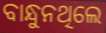
ବାନ୍ଧୁନଥିଲେ